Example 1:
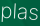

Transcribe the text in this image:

plas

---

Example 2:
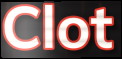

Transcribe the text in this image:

Clot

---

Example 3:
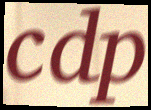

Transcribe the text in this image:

cdp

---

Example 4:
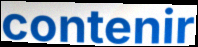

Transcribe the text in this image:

contenir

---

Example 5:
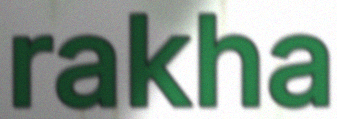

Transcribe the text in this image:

rakha